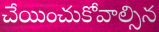
చేయించుకోవాల్సిన